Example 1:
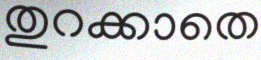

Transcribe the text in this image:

തുറക്കാതെ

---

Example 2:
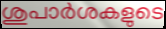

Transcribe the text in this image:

ശുപാർശകളുടെ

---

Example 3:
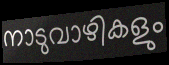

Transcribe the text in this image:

നാടുവാഴികളും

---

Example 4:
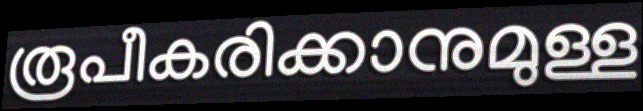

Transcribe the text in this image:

രൂപീകരിക്കാനുമുള്ള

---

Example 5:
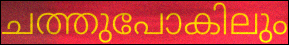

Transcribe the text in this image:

ചത്തുപോകിലും